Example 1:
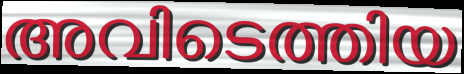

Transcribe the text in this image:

അവിടെത്തിയ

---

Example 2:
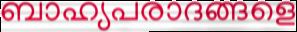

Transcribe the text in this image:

ബാഹ്യപരാദങ്ങളെ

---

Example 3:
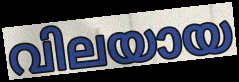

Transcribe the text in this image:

വിലയായ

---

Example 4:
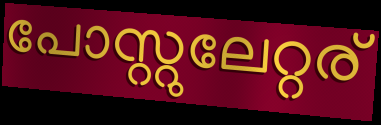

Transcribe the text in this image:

പോസ്റ്റുലേറ്റര്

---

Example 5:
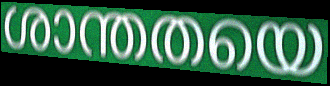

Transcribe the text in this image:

ശാന്തതയെ